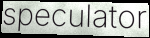
speculator